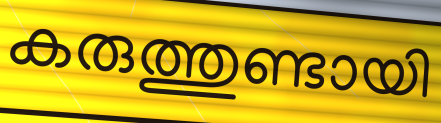
കരുത്തുണ്ടായി